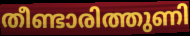
തീണ്ടാരിത്തുണി